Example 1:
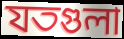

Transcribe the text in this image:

যতগুলা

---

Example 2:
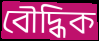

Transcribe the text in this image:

বৌদ্ধিক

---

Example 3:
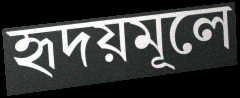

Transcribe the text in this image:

হৃদয়মূলে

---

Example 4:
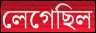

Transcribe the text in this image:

লেগেছিল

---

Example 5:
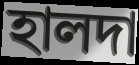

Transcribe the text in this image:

হালদা